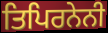
ਤਿਪਿਰਨੇਨੀ